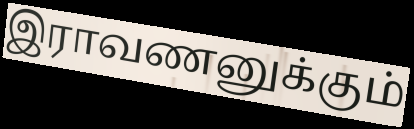
இராவணனுக்கும்